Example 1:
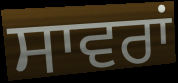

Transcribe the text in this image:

ਸਾਵਰਾਂ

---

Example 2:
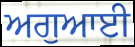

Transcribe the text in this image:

ਅਗੁਆਈ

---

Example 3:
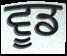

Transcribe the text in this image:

ਵੂਡ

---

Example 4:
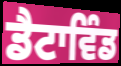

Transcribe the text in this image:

ਡੈਟਾਵਿੰਡ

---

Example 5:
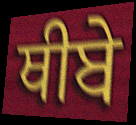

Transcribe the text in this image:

ਥੀਬੇ